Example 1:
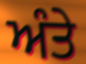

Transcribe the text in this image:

ਅੰਤੇ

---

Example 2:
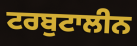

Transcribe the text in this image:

ਟਰਬੁਟਾਲੀਨ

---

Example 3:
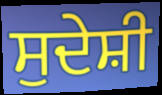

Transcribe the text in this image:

ਸੁਦੇਸ਼ੀ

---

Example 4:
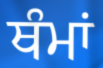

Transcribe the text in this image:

ਥੰਮਾਂ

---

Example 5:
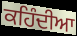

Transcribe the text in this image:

ਕਹਿੰਦੀਆ